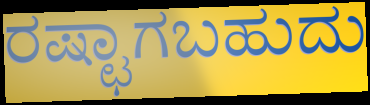
ರಷ್ಟಾಗಬಹುದು